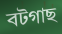
বটগাছ